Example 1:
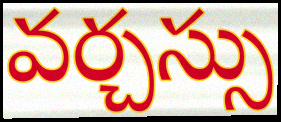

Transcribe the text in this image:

వర్చస్సు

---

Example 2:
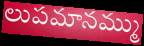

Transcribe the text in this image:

లుపమానమ్ము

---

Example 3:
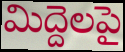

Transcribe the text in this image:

మిద్దెలపై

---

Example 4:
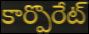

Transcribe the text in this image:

కార్పొరేట్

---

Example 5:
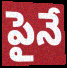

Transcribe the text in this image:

పైనే